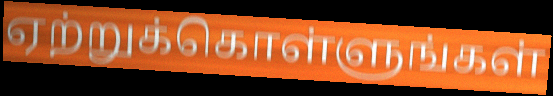
ஏற்றுக்கொள்ளுங்கள்